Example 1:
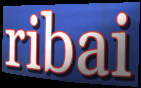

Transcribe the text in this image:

ribai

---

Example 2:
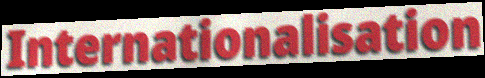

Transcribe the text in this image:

Internationalisation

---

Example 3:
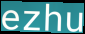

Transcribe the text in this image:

ezhu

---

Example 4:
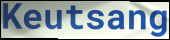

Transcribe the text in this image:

Keutsang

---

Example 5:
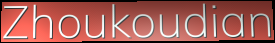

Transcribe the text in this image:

Zhoukoudian